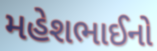
મહેશભાઈનો